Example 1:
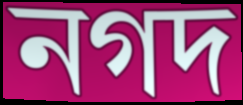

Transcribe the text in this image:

নগদ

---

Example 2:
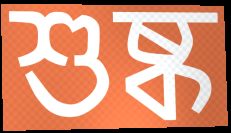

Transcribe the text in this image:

শুষ্ক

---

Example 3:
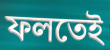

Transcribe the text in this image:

ফলতেই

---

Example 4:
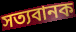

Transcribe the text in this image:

সত্যবানক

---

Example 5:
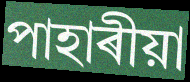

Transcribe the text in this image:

পাহাৰীয়া